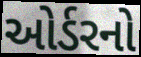
ઓર્ડરનો